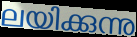
ലയിക്കുന്നു